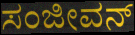
ಸಂಜೀವನ್